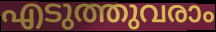
എടുത്തുവരാം